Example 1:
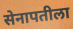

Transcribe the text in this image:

सेनापतीला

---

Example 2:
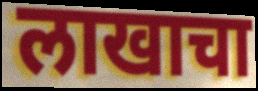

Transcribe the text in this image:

लाखाचा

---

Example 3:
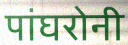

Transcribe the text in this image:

पांघरोनी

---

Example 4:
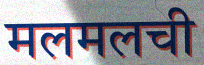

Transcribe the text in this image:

मलमलची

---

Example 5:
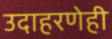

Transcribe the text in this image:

उदाहरणेही